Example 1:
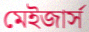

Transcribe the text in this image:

মেইজার্স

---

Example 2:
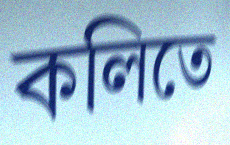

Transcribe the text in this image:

কলিতে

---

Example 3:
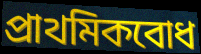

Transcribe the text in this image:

প্রাথমিকবোধ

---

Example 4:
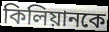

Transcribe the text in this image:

কিলিয়ানকে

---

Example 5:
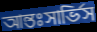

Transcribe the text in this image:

আন্তঃসার্ভিস